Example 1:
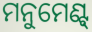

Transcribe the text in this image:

ମନୁମେଣ୍ଟ୍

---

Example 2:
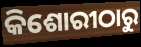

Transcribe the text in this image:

କିଶୋରୀଠାରୁ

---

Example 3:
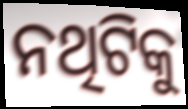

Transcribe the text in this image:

ନଥିଟିକୁ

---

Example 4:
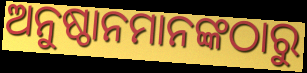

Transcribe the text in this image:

ଅନୁଷ୍ଠାନମାନଙ୍କଠାରୁ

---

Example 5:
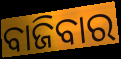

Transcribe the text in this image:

ବାଜିବାର